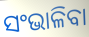
ସଂଭାଳିବା